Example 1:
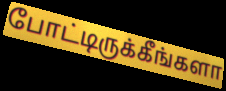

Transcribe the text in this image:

போட்டிருக்கீங்களா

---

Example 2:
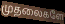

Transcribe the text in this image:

முதலைகளே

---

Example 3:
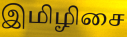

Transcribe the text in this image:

இமிழிசை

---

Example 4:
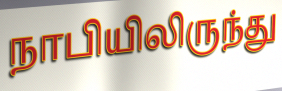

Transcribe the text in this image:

நாபியிலிருந்து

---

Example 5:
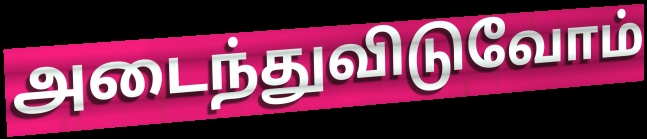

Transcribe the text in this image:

அடைந்துவிடுவோம்